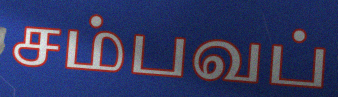
சம்பவப்